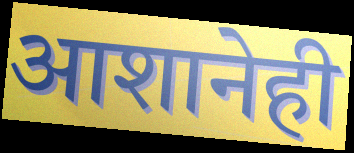
आशानेही